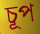
চূপ